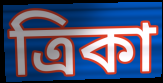
ত্রিকা